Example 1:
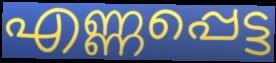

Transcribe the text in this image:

എണ്ണപ്പെട്ട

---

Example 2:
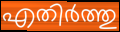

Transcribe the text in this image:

എതിർത്തു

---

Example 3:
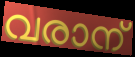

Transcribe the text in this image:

വരാന്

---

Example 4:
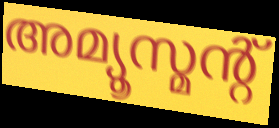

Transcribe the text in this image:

അമ്യൂസ്മന്റ്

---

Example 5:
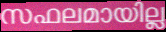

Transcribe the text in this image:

സഫലമായില്ല